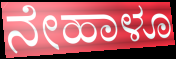
ನೇಹಾಳೂ